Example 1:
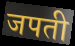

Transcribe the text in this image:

जपती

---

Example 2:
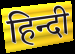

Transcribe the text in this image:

हिन्दी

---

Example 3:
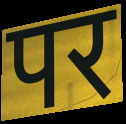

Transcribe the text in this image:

पर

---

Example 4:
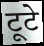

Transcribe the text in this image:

टूटे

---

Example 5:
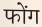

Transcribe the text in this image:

फोंग